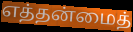
எத்தன்மைத்